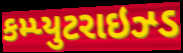
કમ્પ્યુટરાઇઝ્ડ